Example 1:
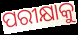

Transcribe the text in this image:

ପରୀକ୍ଷାକୁ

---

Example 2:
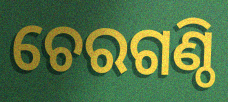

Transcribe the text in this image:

ଚେରଗଣ୍ଠି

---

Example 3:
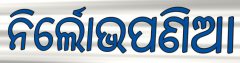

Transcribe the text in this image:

ନିର୍ଲୋଭପଣିଆ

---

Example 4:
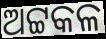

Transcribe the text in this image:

ଅଟ୍ଟକଳ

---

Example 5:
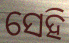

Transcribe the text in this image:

ସେହି